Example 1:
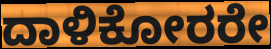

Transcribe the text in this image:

ದಾಳಿಕೋರರೇ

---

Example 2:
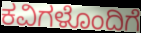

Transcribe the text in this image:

ಕವಿಗಳೊಂದಿಗೆ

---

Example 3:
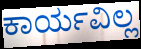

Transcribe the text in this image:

ಕಾರ್ಯವಿಲ್ಲ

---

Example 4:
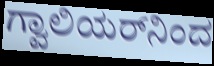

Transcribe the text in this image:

ಗ್ವಾಲಿಯರ್‌ನಿಂದ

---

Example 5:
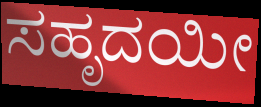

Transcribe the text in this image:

ಸಹೃದಯೀ